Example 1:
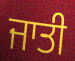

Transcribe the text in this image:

ਜਾਤੀ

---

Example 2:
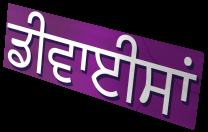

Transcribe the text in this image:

ਡੀਵਾਈਸਾਂ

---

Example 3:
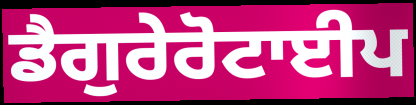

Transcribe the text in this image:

ਡੈਗੁਰੇਰੋਟਾਈਪ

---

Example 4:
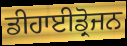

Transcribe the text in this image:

ਡੀਹਾਈਡ੍ਰੋਜਨ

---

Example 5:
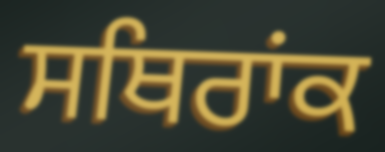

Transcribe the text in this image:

ਸਥਿਰਾਂਕ